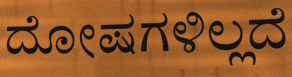
ದೋಷಗಳಿಲ್ಲದೆ